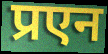
प्रएन